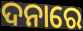
ଦନାରେ